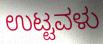
ಉಟ್ಟವಳು